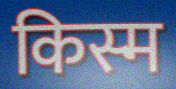
किस्‍म